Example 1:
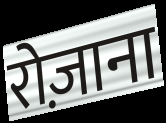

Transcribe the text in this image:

रोज़ाना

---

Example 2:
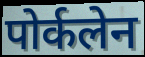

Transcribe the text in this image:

पोर्कलेन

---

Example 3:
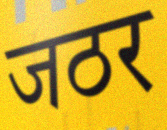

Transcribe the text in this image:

जठर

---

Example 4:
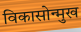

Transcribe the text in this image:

विकासोन्मुख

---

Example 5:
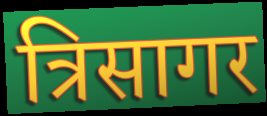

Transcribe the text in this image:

त्रिसागर